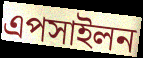
এপসাইলন